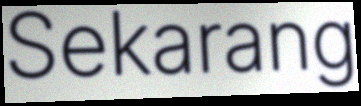
Sekarang